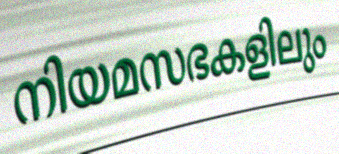
നിയമസഭകളിലും